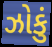
ઝોકું